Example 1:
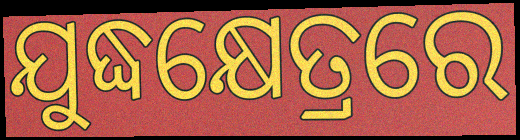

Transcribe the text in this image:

ଯୁଦ୍ଧକ୍ଷେତ୍ରରେ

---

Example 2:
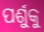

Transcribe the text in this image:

ପର୍ଶୁକୁ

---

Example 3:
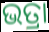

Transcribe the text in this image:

ଭତ୍ରା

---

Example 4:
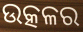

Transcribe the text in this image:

ଉତ୍କଳର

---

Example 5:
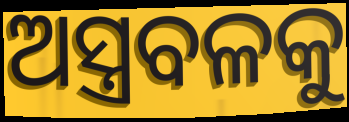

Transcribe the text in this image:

ଅସ୍ତ୍ରବଳକୁ